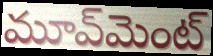
మూవ్‌మెంట్